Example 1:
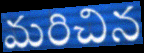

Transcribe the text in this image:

మరిచిన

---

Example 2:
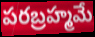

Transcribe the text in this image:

పరబ్రహ్మమే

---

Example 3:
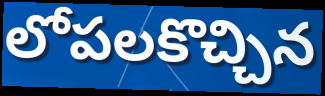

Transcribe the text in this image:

లోపలకొచ్చిన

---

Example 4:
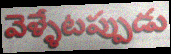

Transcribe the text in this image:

వెళ్ళేటప్పుడు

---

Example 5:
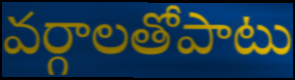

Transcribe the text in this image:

వర్గాలతోపాటు